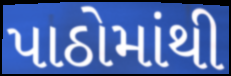
પાઠોમાંથી